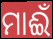
ମାଈଁ